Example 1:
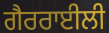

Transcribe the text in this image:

ਗੈਰਰਾਈਲੀ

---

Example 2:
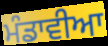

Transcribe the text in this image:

ਮੰਡਾਵੀਆ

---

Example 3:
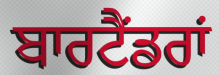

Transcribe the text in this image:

ਬਾਰਟੈਂਡਰਾਂ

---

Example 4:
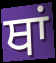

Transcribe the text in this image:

ਥਾਂ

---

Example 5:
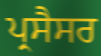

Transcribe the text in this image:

ਪ੍ਰਸੈਸਰ